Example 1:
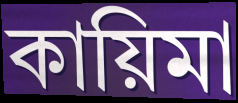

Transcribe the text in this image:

কায়িমা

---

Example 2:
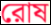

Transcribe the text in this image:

রোষ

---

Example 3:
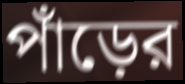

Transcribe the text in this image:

পাঁড়ের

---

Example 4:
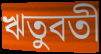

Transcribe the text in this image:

ঋতুবতী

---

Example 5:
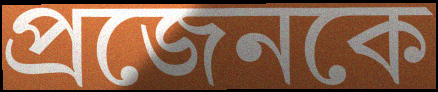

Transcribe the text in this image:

প্রজেনকে